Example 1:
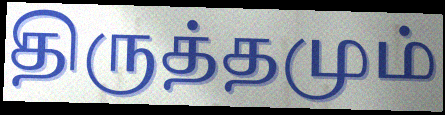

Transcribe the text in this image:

திருத்தமும்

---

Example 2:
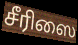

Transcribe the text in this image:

சீரிஸை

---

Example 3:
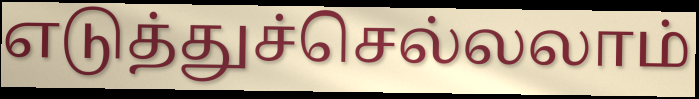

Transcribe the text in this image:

எடுத்துச்செல்லலாம்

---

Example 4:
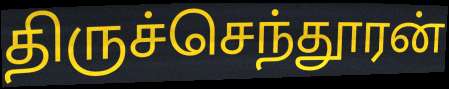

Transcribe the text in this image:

திருச்செந்தூரன்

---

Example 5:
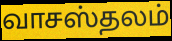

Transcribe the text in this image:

வாசஸ்தலம்